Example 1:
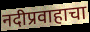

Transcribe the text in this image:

नदीप्रवाहाचा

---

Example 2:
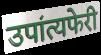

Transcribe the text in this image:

उपांत्यफेरी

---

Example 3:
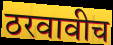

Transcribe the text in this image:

ठरवावीच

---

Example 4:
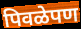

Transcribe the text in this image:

पिवळेपण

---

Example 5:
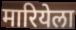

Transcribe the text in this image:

मारियेला